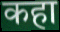
कहा